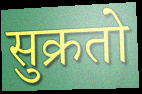
सुक्रतो